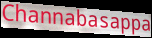
Channabasappa